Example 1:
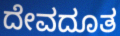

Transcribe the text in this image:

ದೇವದೂತ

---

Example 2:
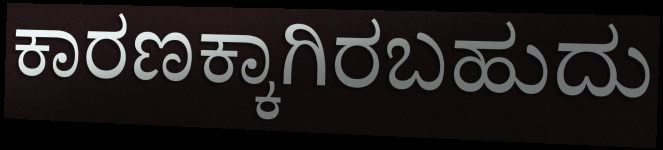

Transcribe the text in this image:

ಕಾರಣಕ್ಕಾಗಿರಬಹುದು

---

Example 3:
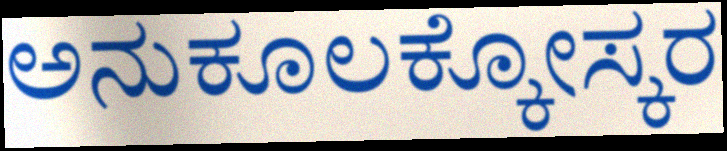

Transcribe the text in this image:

ಅನುಕೂಲಕ್ಕೋಸ್ಕರ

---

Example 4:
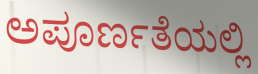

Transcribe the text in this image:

ಅಪೂರ್ಣತೆಯಲ್ಲಿ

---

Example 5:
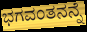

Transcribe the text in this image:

ಭಗವಂತನನ್ನೆ